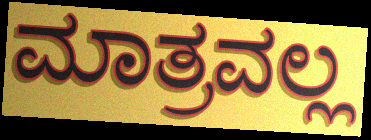
ಮಾತ್ರವಲ್ಲ